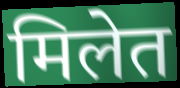
मिलेत